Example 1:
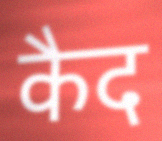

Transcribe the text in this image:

कैद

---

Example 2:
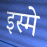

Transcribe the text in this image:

इस्मे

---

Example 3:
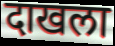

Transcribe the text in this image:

दाखला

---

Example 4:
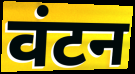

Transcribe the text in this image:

वंटन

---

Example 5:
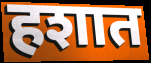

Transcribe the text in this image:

हशात